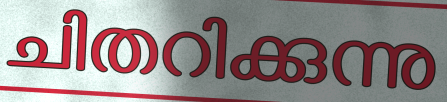
ചിതറിക്കുന്നു